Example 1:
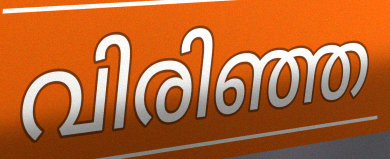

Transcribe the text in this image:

വിരിഞ്ഞ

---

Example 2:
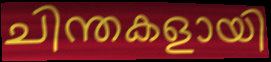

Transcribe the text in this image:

ചിന്തകളായി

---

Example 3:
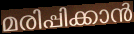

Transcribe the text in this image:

മരിപ്പിക്കാൻ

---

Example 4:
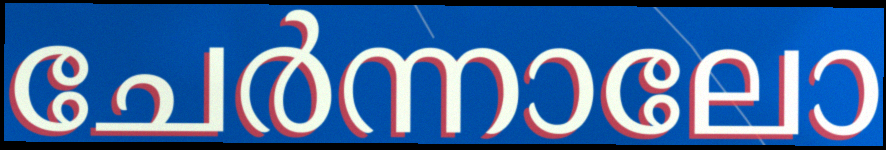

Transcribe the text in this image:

ചേർന്നാലോ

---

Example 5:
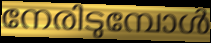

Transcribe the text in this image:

നേരിടുമ്പോൾ